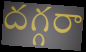
దగ్గరా